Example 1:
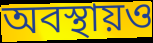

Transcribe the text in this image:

অবস্থায়ও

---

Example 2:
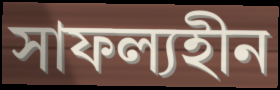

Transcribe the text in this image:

সাফল্যহীন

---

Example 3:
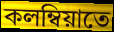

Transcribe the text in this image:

কলম্বিয়াতে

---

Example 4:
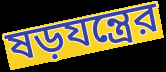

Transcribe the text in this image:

ষড়যন্ত্রের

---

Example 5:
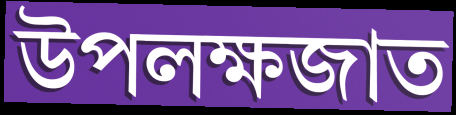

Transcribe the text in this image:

উপলক্ষজাত